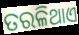
ତରଳିଥାଏ